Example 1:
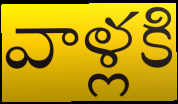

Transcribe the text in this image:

వాళ్లకి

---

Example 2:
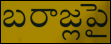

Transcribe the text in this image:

బరాజ్లపై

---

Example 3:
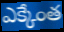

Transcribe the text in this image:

ఎక్కేంత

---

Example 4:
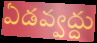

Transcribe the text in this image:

ఏడవ్వద్దు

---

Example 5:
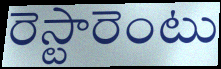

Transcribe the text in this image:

రెస్టారెంటు